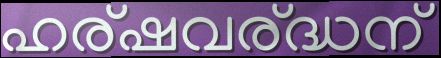
ഹര്ഷവര്ദ്ധന്